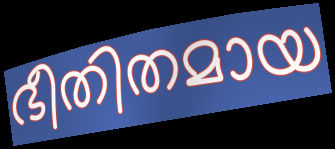
ഭീതിതമായ